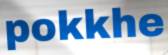
pokkhe